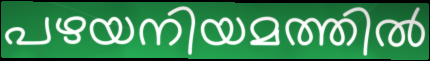
പഴയനിയമത്തിൽ